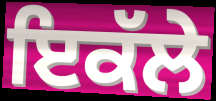
ਇਕੱਲੇ